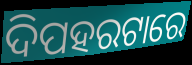
ଦିପହରଟାରେ